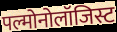
पल्मोनोलॉजिस्ट